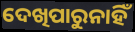
ଦେଖିପାରୁନାହିଁ